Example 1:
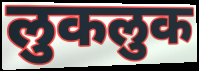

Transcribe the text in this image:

लुकलुक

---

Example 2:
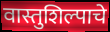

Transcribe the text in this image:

वास्तुशिल्पाचे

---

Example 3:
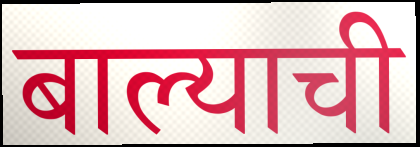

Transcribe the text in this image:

बाल्याची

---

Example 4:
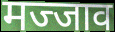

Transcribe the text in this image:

मज्जाव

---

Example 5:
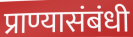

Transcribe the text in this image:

प्राण्यासंबंधी